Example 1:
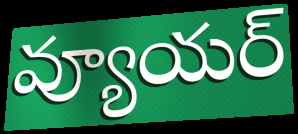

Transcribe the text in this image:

వ్యూయర్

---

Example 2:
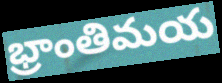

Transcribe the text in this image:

భ్రాంతిమయ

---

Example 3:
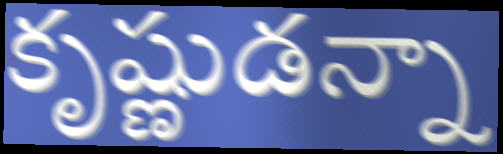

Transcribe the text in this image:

కృష్ణుడన్నా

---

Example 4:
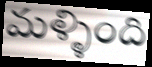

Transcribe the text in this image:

మళ్ళింది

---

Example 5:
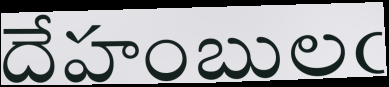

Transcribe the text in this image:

దేహంబులఁ